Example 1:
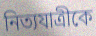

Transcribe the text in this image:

নিত্যযাত্রীকে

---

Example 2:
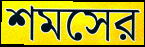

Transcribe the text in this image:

শমসের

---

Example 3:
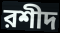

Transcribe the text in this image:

রশীদ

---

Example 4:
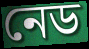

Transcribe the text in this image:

নেড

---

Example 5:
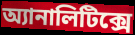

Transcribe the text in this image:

অ্যানালিটিক্সে